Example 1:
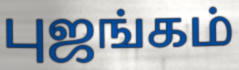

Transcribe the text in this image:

புஜங்கம்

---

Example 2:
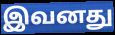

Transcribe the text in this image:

இவனது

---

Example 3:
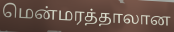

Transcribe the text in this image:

மென்மரத்தாலான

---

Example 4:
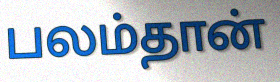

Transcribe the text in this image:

பலம்தான்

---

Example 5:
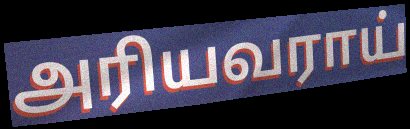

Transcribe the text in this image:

அரியவராய்